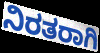
ನಿರತರಾಗಿ